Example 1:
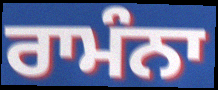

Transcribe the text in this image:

ਰਾਮੰਨਾ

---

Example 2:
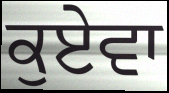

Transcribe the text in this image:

ਕੁਏਵਾ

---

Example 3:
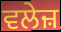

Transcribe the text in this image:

ਵਲੇਜ਼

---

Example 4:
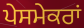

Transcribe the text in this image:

ਪੇਸਮੇਕਰਾਂ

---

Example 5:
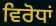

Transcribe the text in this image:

ਵਿਰੋਧਾਂ